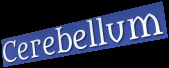
Cerebellum